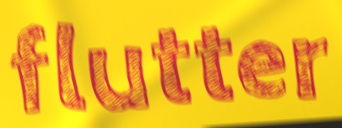
flutter